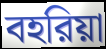
বহরিয়া